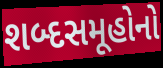
શબ્દસમૂહોનો